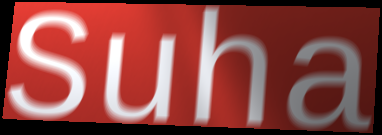
Suha